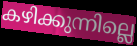
കഴിക്കുന്നില്ലെ